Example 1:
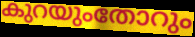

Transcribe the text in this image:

കുറയുംതോറും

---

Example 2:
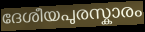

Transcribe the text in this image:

ദേശീയപുരസ്കാരം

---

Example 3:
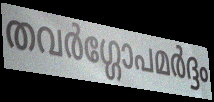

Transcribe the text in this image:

തവർഗ്ഗോപമർദ്ദം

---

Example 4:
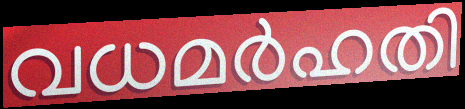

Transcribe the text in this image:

വധമർഹതി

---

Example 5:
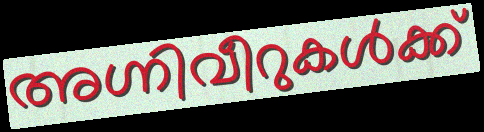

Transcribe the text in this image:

അഗ്നിവീറുകൾക്ക്